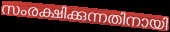
സംരക്ഷിക്കുന്നതിനായി